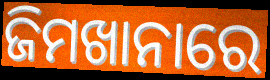
ଜିମଖାନାରେ